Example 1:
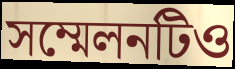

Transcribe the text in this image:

সম্মেলনটিও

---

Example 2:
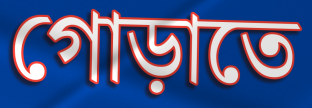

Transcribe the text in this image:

গোড়াতে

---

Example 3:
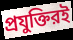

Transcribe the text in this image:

প্রযুক্তিরই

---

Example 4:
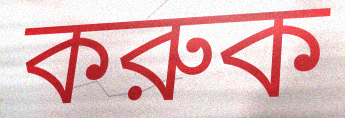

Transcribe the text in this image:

করুক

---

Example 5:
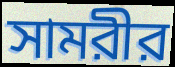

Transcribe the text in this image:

সামরীর